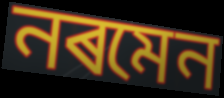
নৰমেন